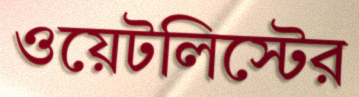
ওয়েটলিস্টের